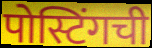
पोस्टिंगची